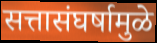
सत्तासंघर्षामुळे